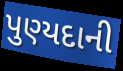
પુણ્યદાની